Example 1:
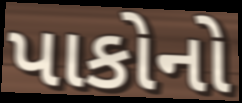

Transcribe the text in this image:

પાકોનો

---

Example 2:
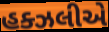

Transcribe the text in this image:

હક્ઝલીએ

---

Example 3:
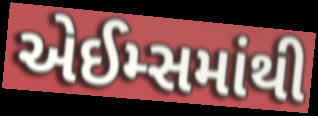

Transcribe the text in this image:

એઈમ્સમાંથી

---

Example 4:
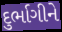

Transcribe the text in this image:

દુર્ભાગીને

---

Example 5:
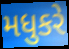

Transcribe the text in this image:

મધુકરે